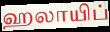
ஹலாயிப்